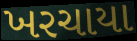
ખરચાયા